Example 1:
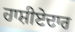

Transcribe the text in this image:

ਹਾਸ਼ੀਏਦਾਰ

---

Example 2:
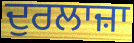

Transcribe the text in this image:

ਦੁਰਲਾਜ਼ਾ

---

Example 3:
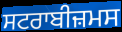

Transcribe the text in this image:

ਸਟਰਾਬੀਜ਼ਮਸ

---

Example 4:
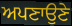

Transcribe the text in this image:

ਅਪਣਾਉਣੇ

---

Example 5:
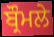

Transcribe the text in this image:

ਬ੍ਰੌਮਲੇ